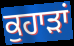
ਕੁਹਾੜਾਂ